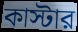
কাস্টার